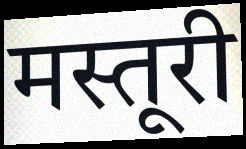
मस्तूरी